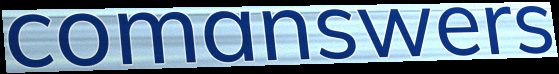
comanswers